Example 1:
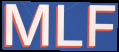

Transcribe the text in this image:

MLF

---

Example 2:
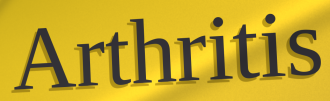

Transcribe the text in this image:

Arthritis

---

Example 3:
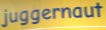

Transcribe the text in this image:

juggernaut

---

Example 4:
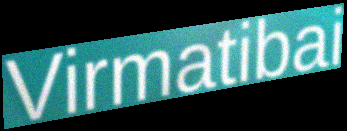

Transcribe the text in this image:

Virmatibai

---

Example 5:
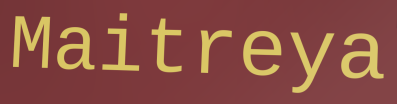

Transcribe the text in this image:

Maitreya